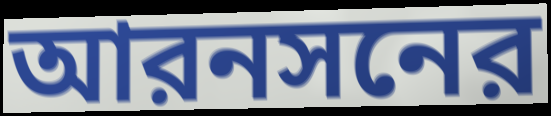
আরনসনের